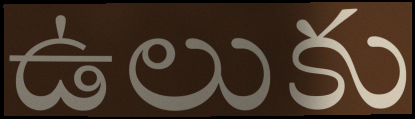
ఉలుకు